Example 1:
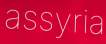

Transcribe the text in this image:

assyria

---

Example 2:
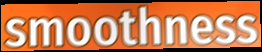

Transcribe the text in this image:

smoothness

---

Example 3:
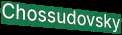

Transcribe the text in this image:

Chossudovsky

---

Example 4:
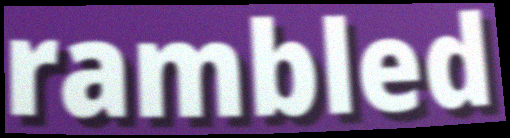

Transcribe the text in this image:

rambled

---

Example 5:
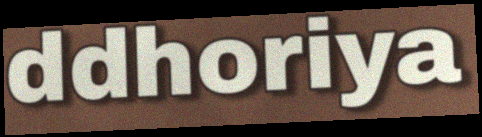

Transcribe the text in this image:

ddhoriya